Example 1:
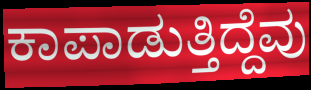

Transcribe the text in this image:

ಕಾಪಾಡುತ್ತಿದ್ದೆವು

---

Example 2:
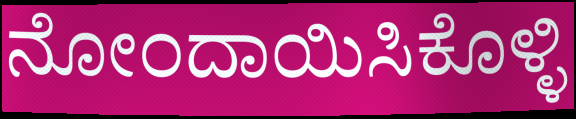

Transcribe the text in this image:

ನೋಂದಾಯಿಸಿಕೊಳ್ಳಿ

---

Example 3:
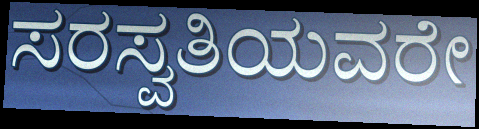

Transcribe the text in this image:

ಸರಸ್ವತಿಯವರೇ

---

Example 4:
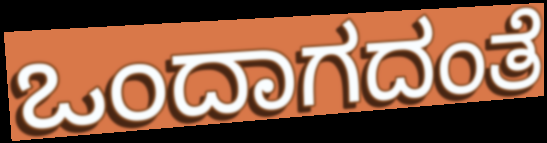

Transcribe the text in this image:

ಒಂದಾಗದಂತೆ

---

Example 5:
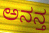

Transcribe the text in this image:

ಅನನ್ತ